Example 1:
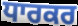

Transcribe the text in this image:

ਧਾਰਕਰ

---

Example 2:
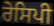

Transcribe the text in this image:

ਰੇਸਿਪੀ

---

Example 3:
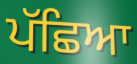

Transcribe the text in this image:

ਪੱਛਿਆ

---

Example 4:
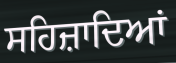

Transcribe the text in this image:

ਸਹਿਜ਼ਾਦਿਆਂ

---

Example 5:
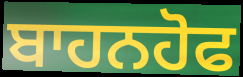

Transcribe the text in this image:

ਬਾਹਨਹੋਫ